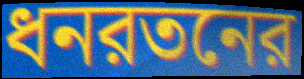
ধনরতনের